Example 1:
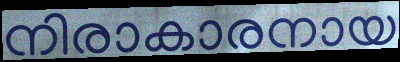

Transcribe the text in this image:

നിരാകാരനായ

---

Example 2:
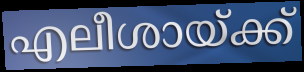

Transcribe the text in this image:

എലീശായ്ക്ക്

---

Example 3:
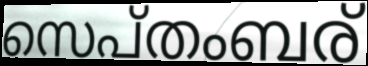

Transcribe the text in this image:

സെപ്തംബര്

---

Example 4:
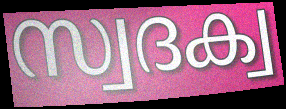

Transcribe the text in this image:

സ്വദക്വ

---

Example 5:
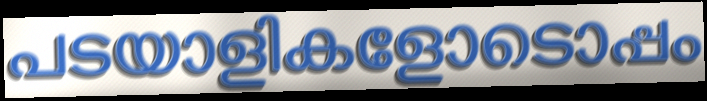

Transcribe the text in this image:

പടയാളികളോടൊപ്പം